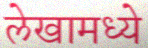
लेखामध्ये